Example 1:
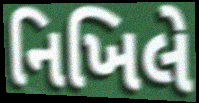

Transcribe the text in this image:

નિખિલે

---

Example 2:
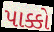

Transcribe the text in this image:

પાક્કો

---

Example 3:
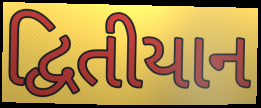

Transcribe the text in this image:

દ્વિતીયાન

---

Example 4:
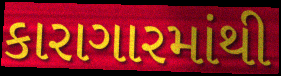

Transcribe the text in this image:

કારાગારમાંથી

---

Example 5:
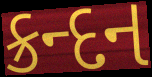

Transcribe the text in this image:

ક્રન્દન